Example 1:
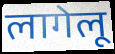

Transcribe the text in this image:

लागेलू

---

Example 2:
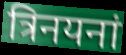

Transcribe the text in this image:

त्रिनयनां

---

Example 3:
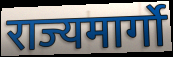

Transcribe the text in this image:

राज्यमार्गो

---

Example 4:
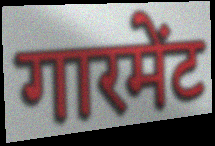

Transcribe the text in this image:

गारमेंट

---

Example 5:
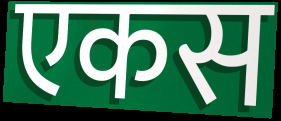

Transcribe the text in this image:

एकस